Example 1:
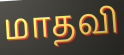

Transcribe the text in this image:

மாதவி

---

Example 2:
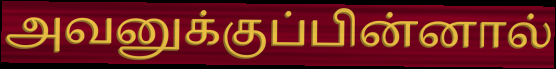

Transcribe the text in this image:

அவனுக்குப்பின்னால்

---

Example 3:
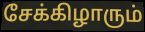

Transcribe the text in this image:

சேக்கிழாரும்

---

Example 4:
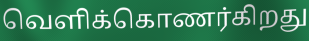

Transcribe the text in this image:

வெளிக்கொணர்கிறது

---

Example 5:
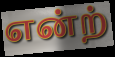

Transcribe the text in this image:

என்ற்